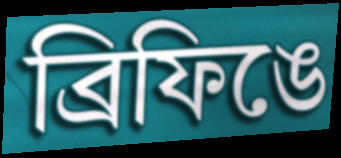
ব্রিফিঙে